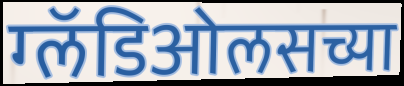
ग्लॅडिओलसच्या